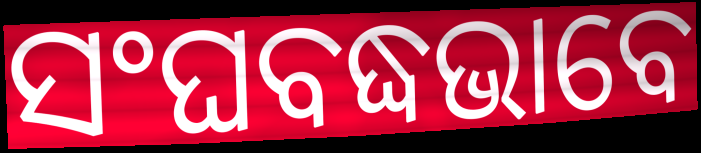
ସଂଘବଦ୍ଧଭାବେ